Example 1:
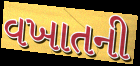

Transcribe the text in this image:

વખાતની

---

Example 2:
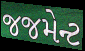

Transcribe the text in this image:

જજમેન્ટ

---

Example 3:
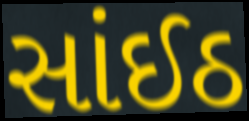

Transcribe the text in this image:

સાંઈઠ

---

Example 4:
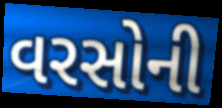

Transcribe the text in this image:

વરસોની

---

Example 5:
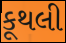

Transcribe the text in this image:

કૂથલી